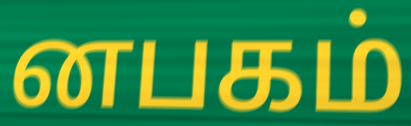
னபகம்